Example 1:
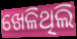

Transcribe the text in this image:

ଖେଳିଥିଲି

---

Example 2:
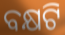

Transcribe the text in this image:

ବକ୍ଷଟି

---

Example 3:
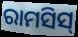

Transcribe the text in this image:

ରାମସିସ୍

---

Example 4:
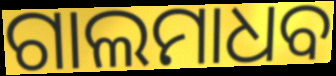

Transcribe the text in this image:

ଗାଲମାଧବ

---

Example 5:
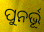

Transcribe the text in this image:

ପୁନର୍ଭୂ